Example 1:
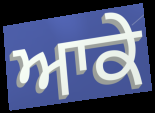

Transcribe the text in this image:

ਆਕੇ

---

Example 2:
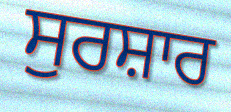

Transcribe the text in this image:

ਸੁਰਸ਼ਾਰ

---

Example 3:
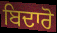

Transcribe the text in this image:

ਬਿਦਾਰੋ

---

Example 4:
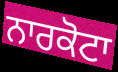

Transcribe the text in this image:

ਨਾਰਕੋਟਾ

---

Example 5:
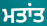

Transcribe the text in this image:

ਮਤਾਂਤ